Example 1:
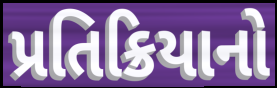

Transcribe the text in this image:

પ્રતિક્રિયાનો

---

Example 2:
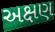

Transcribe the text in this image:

અક્ષણ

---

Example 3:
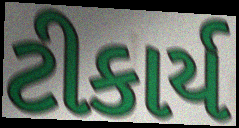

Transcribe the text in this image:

ટીકાર્ય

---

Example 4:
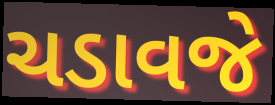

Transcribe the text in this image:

ચડાવજે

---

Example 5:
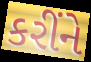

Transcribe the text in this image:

કરીંને